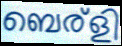
ബെര്ളി